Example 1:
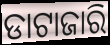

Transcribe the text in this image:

ଡାଟାଜାରି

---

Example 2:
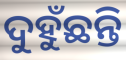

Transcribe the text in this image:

ଦୁହୁଁଛନ୍ତି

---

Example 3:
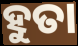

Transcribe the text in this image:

ହୁତା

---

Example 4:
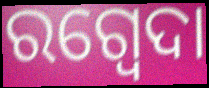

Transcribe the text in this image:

ରଗ୍ବେଦା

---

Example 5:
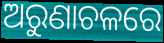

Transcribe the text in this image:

ଅରୁଣାଚଳରେ